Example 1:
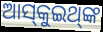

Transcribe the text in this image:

ଆସ୍‌କୁଇଥ୍‌ଙ୍କ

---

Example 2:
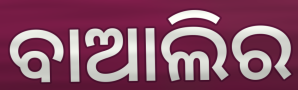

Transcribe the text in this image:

ବାଆଲିର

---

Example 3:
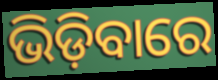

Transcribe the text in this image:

ଭିଡ଼ିବାରେ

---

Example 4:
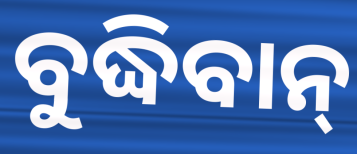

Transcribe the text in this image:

ବୁଦ୍ଧିବାନ୍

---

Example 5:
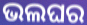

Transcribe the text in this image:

ଭଲଘର